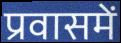
प्रवासमें